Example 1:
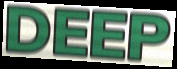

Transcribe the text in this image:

DEEP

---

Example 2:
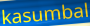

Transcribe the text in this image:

kasumbal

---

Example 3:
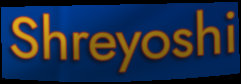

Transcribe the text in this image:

Shreyoshi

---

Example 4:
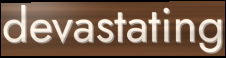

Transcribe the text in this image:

devastating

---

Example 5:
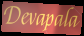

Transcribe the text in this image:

Devapala